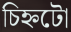
চিহ্নটো